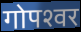
गोपश्वर